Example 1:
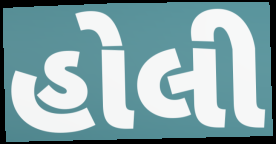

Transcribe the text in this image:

હોલી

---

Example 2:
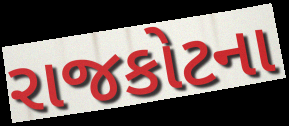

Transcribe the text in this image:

રાજકોટના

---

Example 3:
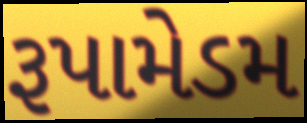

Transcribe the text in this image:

રૂપામેડમ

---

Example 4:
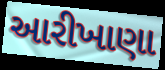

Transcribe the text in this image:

આરીખાણા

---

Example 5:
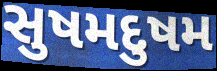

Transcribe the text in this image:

સુષમદુષમ